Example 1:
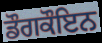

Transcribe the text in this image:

ਡੌਗਕੌਇਨ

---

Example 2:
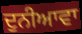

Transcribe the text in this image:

ਦੁਨੀਆਵਾ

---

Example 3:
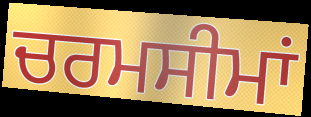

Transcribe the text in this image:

ਚਰਮਸੀਮਾਂ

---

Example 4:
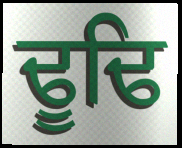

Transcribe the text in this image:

ਢੂਢਿ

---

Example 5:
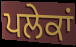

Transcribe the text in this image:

ਪਲੇਕਾਂ